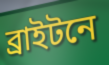
ব্রাইটনে